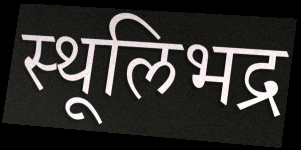
स्थूलिभद्र